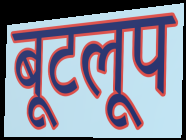
बूटलूप